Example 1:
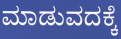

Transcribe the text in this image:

ಮಾಡುವದಕ್ಕೆ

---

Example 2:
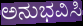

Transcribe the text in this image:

ಅನುಭವಿಸಿ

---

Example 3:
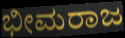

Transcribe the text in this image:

ಭೀಮರಾಜ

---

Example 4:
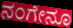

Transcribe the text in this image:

ನಂಗೇನೂ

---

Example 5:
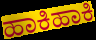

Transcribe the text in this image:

ಹಾಕಿಹಾಕಿ